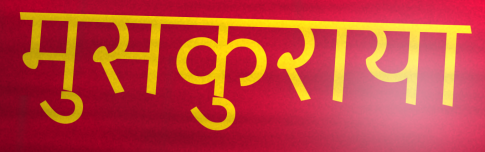
मुसकुराया